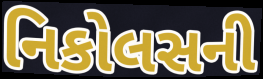
નિકોલસની